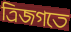
ত্রিজগতে